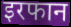
इरफान